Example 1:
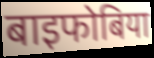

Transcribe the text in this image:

बाइफोबिया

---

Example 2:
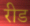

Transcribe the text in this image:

रीड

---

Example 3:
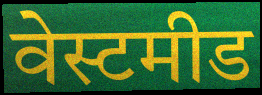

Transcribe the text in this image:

वेस्टमीड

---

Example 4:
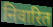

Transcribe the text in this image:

निवारित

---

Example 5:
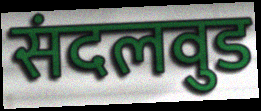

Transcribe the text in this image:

संदलवुड